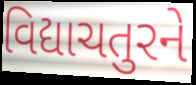
વિદ્યાચતુરને